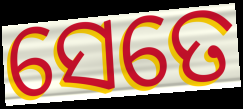
ସେତେ